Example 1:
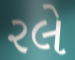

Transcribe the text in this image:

રલે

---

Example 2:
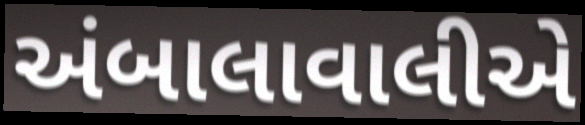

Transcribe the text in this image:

અંબાલાવાલીએ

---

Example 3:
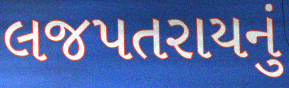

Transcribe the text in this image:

લજપતરાયનું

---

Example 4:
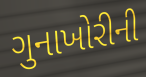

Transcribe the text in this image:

ગુનાખોરીની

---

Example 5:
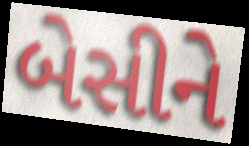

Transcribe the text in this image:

બેસીને